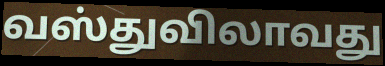
வஸ்துவிலாவது